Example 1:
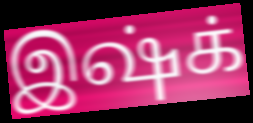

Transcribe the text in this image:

இஷ்க்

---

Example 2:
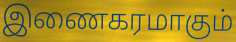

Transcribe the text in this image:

இணைகரமாகும்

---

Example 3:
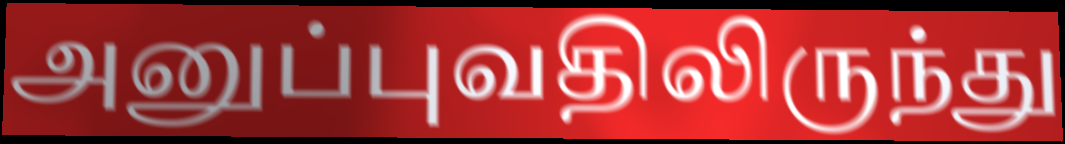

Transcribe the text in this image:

அனுப்புவதிலிருந்து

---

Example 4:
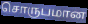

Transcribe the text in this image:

சொருபமான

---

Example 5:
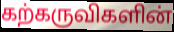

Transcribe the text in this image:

கற்கருவிகளின்